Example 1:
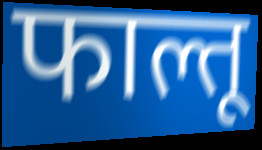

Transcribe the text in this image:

फाल्तू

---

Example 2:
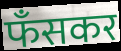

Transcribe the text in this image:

फँसकर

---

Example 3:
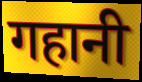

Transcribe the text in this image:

गहानी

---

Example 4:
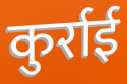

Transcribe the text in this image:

कुर्राई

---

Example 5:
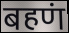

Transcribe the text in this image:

बहणं